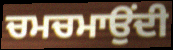
ਚਮਚਮਾਉਂਦੀ